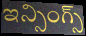
ఇన్సింగ్స్